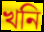
খনি